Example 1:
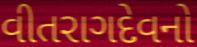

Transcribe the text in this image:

વીતરાગદેવનો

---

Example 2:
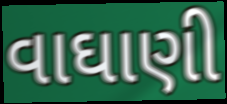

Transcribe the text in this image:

વાઘાણી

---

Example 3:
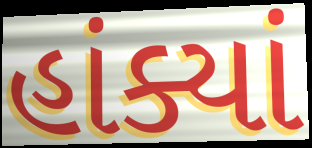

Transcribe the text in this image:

હાંક્યાં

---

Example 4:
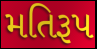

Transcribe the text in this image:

મતિરૂપ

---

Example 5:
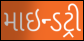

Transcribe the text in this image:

માઇન્ડટ્રી